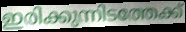
ഇരിക്കുന്നിടത്തേക്ക്